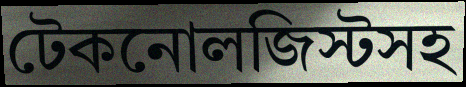
টেকনোলজিস্টসহ